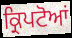
ਕ੍ਰਿਪਟੋਆਂ